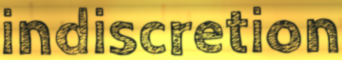
indiscretion